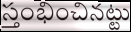
స్తంభించినట్టు